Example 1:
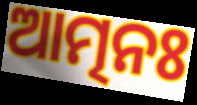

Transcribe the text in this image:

ଆତ୍ମନଃ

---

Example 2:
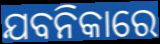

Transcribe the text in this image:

ଯବନିକାରେ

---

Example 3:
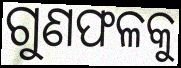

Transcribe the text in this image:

ଗୁଣଫଳକୁ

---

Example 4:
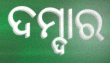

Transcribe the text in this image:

ଦମ୍ଦାର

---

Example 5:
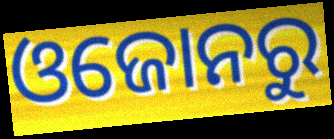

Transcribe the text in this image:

ଓଜୋନରୁ